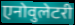
एनोवुलेटरी